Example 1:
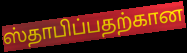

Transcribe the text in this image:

ஸ்தாபிப்பதற்கான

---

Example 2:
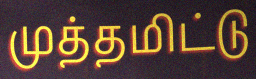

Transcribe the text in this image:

முத்தமிட்டு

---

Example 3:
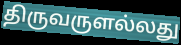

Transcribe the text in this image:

திருவருளல்லது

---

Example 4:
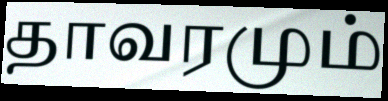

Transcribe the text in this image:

தாவரமும்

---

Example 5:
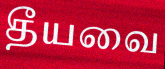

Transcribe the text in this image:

தீயவை